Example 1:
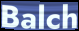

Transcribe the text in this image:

Balch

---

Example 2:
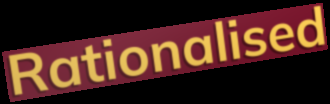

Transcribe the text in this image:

Rationalised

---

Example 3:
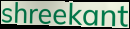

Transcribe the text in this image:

shreekant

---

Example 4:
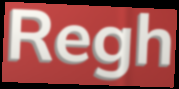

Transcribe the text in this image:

Regh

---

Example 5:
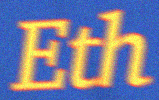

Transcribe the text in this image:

Eth